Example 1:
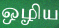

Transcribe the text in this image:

ஒழிய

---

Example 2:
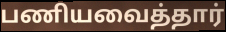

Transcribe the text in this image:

பணியவைத்தார்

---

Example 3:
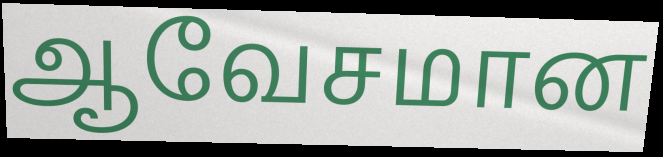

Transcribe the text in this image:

ஆவேசமான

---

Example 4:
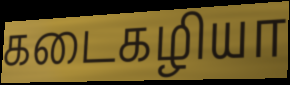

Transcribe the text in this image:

கடைகழியா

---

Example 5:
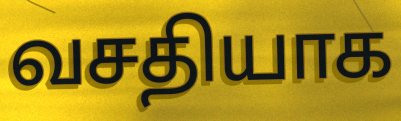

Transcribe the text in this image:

வசதியாக